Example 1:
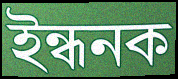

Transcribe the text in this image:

ইন্ধনক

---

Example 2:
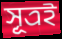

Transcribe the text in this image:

সূত্ৰই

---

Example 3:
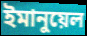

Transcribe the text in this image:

ইমানুয়েল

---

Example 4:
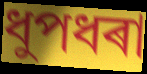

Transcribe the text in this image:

ধুপধৰা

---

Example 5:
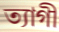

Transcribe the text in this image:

ত্যাগী